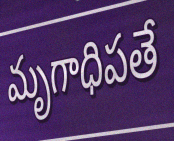
మృగాధిపతే